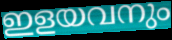
ഇളയവനും